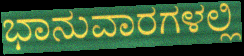
ಭಾನುವಾರಗಳಲ್ಲಿ